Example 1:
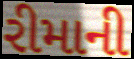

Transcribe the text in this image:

રીમાની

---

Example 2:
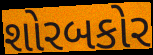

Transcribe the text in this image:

શોરબકોર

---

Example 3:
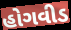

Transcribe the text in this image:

હોગવીડ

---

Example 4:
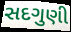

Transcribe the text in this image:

સદગુણી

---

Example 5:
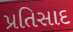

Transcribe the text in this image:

પ્રતિસાદ